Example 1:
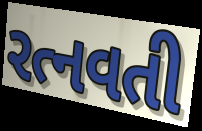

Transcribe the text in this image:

રત્નવતી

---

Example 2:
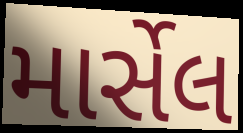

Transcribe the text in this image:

માર્સેલ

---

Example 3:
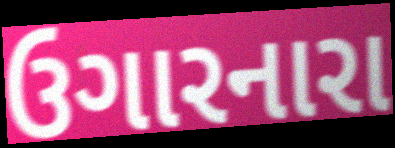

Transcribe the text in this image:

ઉગારનારા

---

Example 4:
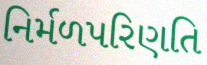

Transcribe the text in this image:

નિર્મળપરિણતિ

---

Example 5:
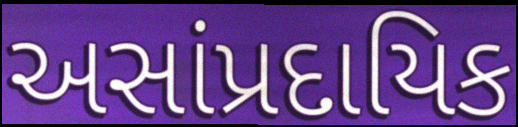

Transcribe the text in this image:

અસાંપ્રદાયિક